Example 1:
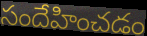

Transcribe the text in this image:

సందేహించడం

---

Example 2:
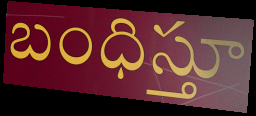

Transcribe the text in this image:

బంధిస్తూ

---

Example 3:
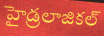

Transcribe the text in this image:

హైడ్రలాజికల్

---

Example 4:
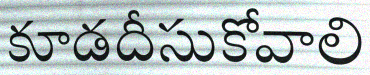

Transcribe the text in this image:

కూడదీసుకోవాలి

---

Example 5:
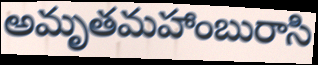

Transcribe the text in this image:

అమృతమహాంబురాసి